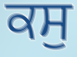
ਕਸੁ